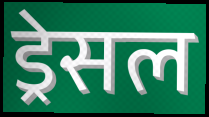
ड्रेसल